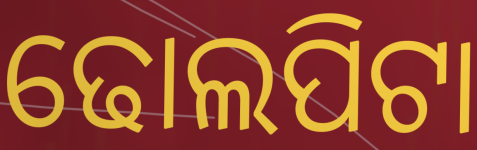
ଢୋଲପିଟା